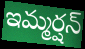
ఇమ్మర్షన్